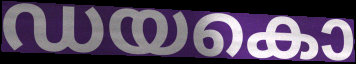
ഡയകൊ